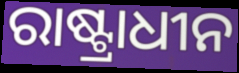
ରାଷ୍ଟ୍ରାଧୀନ